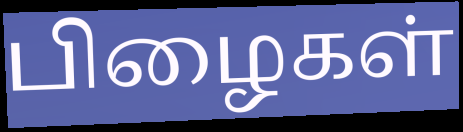
பிழைகள்